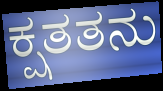
ಕ್ಷತತನು